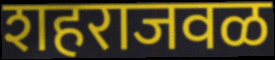
शहराजवळ